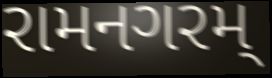
રામનગરમ્